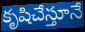
కృషిచేస్తూనే